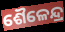
ଶୈଳେନ୍ଦ୍ର